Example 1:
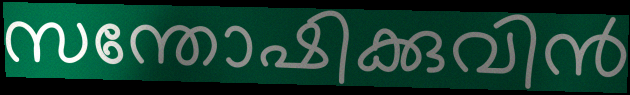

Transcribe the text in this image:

സന്തോഷിക്കുവിൻ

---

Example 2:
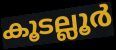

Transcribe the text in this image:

കൂടല്ലൂർ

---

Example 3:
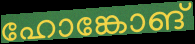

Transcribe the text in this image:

ഹോങ്കോങ്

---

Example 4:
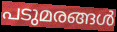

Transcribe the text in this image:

പടുമരങ്ങൾ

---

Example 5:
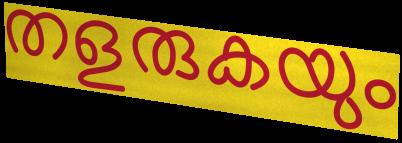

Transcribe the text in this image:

തളരുകയും